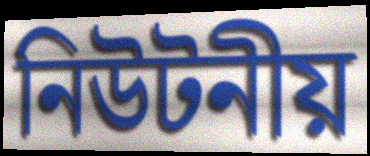
নিউটনীয়